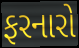
ફરનારો